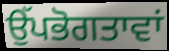
ਉੱਪਭੋਗਤਾਵਾਂ